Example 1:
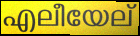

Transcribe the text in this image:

എലീയേല്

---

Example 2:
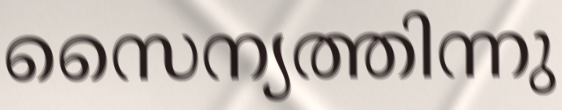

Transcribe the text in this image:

സൈന്യത്തിന്നു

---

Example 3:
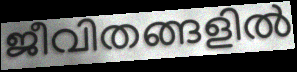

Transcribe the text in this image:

ജീവിതങ്ങളിൽ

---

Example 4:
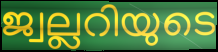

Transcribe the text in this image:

ജ്വല്ലറിയുടെ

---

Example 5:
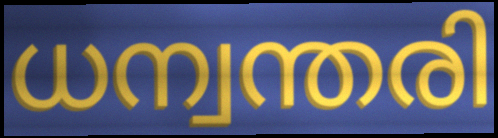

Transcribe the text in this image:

ധന്വന്തരി